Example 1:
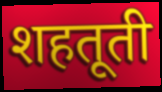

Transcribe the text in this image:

शहतूती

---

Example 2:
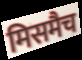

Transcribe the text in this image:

मिसमैच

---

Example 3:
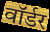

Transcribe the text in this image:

वॉर्डर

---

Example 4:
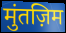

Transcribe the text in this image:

मुंतज़िम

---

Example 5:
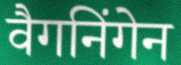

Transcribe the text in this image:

वैगनिंगेन